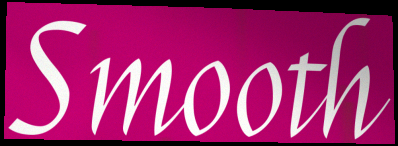
Smooth